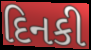
દિનકી